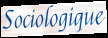
Sociologique